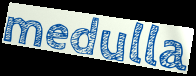
medulla